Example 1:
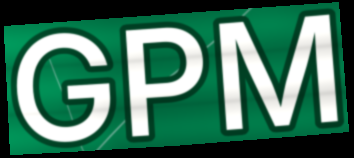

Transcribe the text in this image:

GPM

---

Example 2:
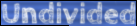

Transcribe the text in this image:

Undivided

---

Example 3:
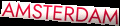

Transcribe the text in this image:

AMSTERDAM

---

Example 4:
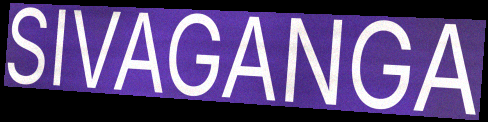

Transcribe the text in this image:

SIVAGANGA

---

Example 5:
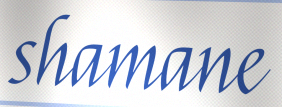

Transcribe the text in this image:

shamane